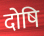
दोषि